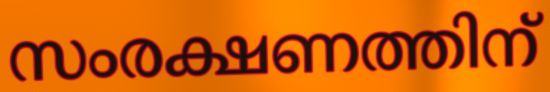
സംരക്ഷണത്തിന്